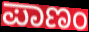
ಪಾಣಂ